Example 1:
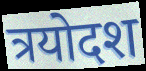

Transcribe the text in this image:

त्रयोदश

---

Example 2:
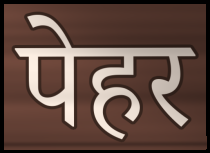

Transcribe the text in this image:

पेहर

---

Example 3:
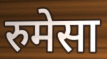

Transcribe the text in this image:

रुमेसा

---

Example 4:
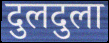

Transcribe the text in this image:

दुलदुला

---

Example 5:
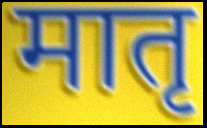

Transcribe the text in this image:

मातृ